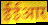
ईईआर